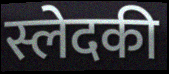
स्लेदकी